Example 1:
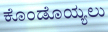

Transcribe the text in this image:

ಕೊಂಡೊಯ್ಯಲು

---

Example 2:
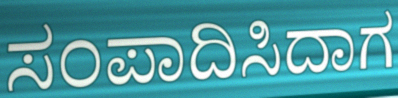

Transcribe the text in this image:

ಸಂಪಾದಿಸಿದಾಗ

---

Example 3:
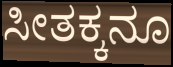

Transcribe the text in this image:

ಸೀತಕ್ಕನೂ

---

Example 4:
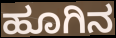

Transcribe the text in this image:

ಹೂಗಿನ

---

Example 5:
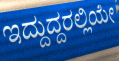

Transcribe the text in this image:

ಇದ್ದುದ್ದರಲ್ಲಿಯೇ